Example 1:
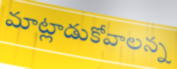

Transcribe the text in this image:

మాట్లాడుకోవాలన్న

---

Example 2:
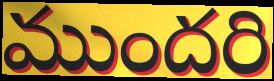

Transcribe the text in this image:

ముందరి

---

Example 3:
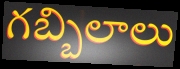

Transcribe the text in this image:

గబ్బిలాలు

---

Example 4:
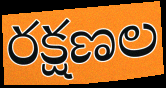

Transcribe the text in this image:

రక్షణల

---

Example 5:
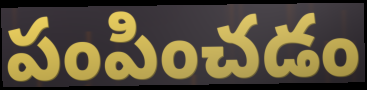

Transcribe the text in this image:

పంపించడం